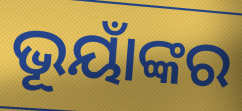
ଭୂୟାଁଙ୍କର